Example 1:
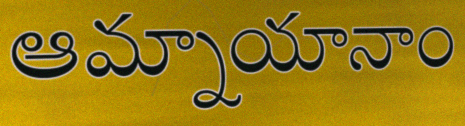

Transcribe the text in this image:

ఆమ్నాయానాం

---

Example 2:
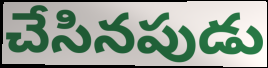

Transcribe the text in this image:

చేసినపుడు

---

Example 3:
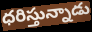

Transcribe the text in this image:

ధరిస్తున్నాడు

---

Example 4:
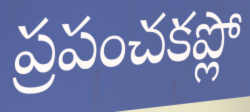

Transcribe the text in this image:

ప్రపంచకప్లో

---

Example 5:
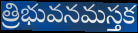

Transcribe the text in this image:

త్రిభువనమస్తక